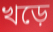
খড়ে